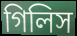
গিলিস